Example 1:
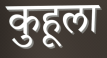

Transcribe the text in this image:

कुहूला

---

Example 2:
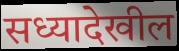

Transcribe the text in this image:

सध्यादेखील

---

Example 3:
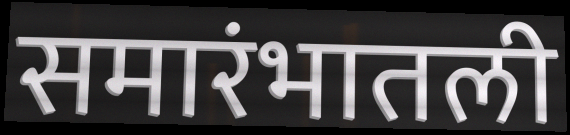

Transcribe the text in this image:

समारंभातली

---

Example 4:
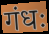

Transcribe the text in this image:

गंधः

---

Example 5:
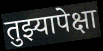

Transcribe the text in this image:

तुझ्यापेक्षा